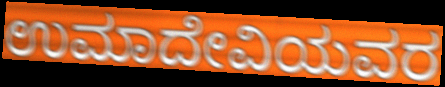
ಉಮಾದೇವಿಯವರ